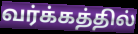
வர்க்கத்தில்